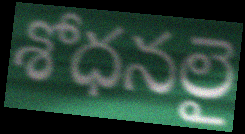
శోధనలై